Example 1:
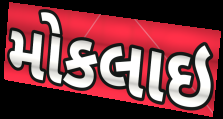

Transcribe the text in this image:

મોકલાઇ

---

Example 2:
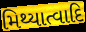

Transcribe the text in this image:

મિથ્યાત્વાદિ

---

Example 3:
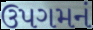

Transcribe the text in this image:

ઉપગમનં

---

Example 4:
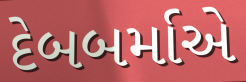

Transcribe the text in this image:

દેબબર્માએ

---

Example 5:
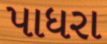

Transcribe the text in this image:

પાધરા